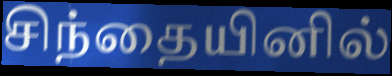
சிந்தையினில்